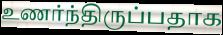
உணர்ந்திருப்பதாக